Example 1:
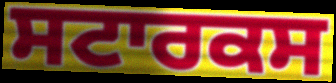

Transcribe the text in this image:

ਸਟਾਰਕਸ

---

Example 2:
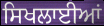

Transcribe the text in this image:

ਸਿਖਲਾਈਆਂ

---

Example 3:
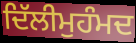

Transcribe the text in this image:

ਦਿੱਲੀਮੁਹੰਮਦ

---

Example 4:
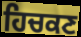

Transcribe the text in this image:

ਹਿਚਕਣ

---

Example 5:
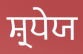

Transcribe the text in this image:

ਸ਼੍ਰਧੇਯ